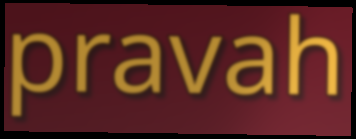
pravah